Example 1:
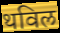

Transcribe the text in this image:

थविल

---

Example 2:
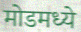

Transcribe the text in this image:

मोडमध्ये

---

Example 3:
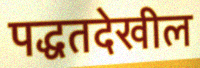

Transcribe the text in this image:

पद्धतदेखील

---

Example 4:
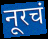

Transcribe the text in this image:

नूरचं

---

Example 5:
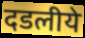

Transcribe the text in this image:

दडलीये